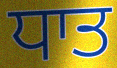
ਧਾਤ